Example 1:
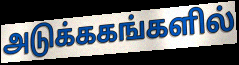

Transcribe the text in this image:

அடுக்ககங்களில்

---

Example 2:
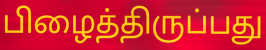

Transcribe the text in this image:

பிழைத்திருப்பது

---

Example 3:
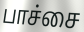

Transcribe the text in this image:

பாச்சை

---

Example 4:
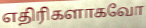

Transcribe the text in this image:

எதிரிகளாகவோ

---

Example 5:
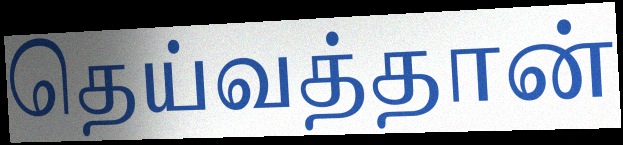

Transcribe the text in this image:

தெய்வத்தான்